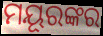
ମୟୂରଙ୍କର